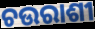
ଚଉରାଶୀ